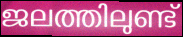
ജലത്തിലുണ്ട്